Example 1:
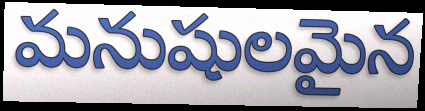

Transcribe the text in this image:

మనుషులమైన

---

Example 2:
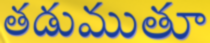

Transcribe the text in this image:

తడుముతూ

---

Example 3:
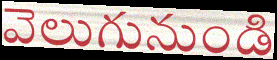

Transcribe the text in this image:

వెలుగునుండి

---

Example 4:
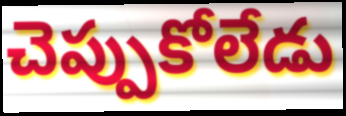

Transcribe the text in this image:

చెప్పుకోలేడు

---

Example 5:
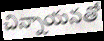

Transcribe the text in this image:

చిన్నాయనతో